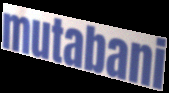
mutabani